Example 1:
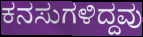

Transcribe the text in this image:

ಕನಸುಗಳಿದ್ದವು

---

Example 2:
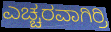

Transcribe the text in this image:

ಎಚ್ಚರವಾಗಿರ್ರಿ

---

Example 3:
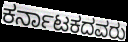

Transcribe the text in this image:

ಕರ್ನಾಟಕದವರು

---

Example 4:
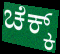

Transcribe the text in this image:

ಚೆಕ್ಕ್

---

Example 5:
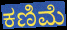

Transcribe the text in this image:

ಕಣಿಮೆ